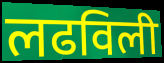
लढविली